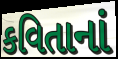
કવિતાનાં